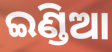
ଇଣ୍ଡିଆ